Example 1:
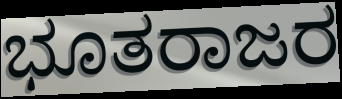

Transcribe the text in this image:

ಭೂತರಾಜರ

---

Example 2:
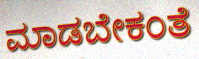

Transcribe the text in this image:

ಮಾಡಬೇಕಂತೆ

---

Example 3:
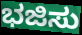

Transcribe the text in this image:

ಭಜಿಸು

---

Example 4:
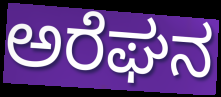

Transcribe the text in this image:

ಅರೆಘನ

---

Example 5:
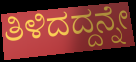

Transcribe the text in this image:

ತಿಳಿದದ್ದನ್ನೇ